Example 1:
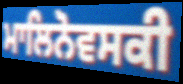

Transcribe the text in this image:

ਮਾਲਿਨੋਵਸਕੀ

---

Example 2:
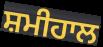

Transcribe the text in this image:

ਸ਼ਮੀਹਾਲ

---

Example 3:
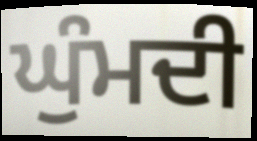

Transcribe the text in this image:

ਘੁੰਮਦੀ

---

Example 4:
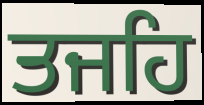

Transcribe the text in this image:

ਤਜਹਿ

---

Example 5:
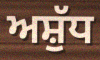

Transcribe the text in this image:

ਅਸ਼ੁੱਧ